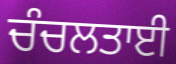
ਚੰਚਲਤਾਈ